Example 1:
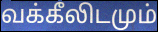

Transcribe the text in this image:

வக்கீலிடமும்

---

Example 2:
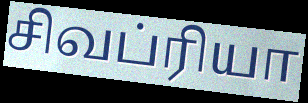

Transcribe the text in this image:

சிவப்ரியா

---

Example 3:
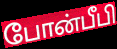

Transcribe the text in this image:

போன்பீபி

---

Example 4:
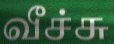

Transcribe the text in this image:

வீச்சு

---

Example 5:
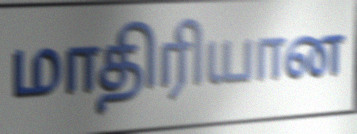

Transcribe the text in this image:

மாதிரியான